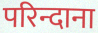
परिन्दाना